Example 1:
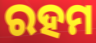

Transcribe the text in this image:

ରହମ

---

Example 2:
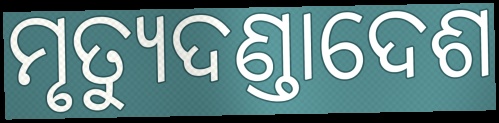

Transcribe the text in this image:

ମୃତ୍ୟୁଦଣ୍ଡାଦେଶ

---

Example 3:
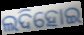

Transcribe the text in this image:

ଲଦିହୋଇ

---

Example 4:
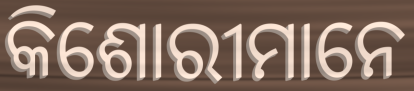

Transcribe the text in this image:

କିଶୋରୀମାନେ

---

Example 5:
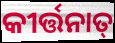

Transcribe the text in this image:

କୀର୍ତ୍ତନାତ୍